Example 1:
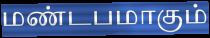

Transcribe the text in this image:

மண்டபமாகும்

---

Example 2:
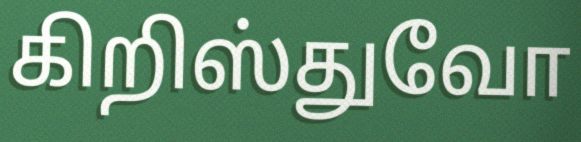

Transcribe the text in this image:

கிறிஸ்துவோ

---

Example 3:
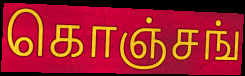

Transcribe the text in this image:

கொஞ்சங்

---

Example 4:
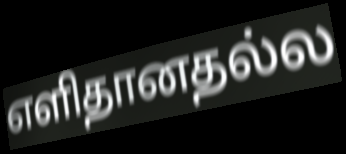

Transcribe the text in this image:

எளிதானதல்ல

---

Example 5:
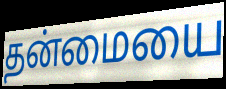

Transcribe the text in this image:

தன்மையை